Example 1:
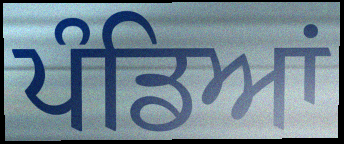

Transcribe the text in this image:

ਪੰਡਿਆਂ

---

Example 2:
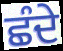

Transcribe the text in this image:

ਛੰਦੇ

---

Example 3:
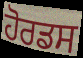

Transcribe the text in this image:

ਹੋਰਡਸ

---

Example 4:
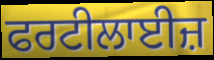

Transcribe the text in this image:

ਫਰਟੀਲਾਈਜ਼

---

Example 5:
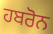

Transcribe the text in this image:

ਹਬਰੋਨ